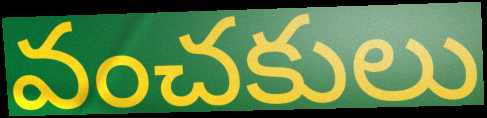
వంచకులు